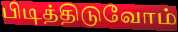
பிடித்திடுவோம்